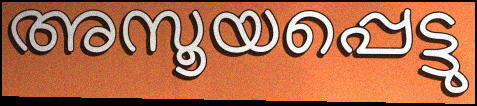
അസൂയപ്പെട്ടു